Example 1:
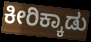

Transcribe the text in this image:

ಕೀರಿಕ್ಕಾಡು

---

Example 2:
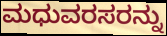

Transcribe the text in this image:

ಮಧುವರಸರನ್ನು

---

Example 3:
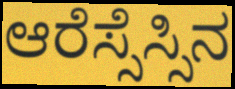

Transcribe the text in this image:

ಆರೆಸ್ಸೆಸ್ಸಿನ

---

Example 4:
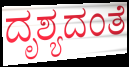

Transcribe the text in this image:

ದೃಶ್ಯದಂತೆ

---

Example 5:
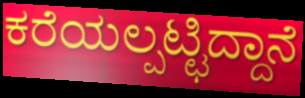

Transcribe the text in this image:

ಕರೆಯಲ್ಪಟ್ಟಿದ್ದಾನೆ